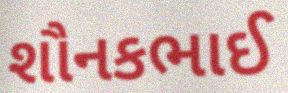
શૌનકભાઈ